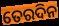
ତେରଦିନ